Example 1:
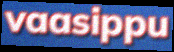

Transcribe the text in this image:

vaasippu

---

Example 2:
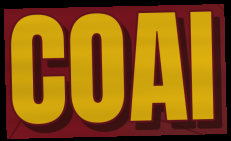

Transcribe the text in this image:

COAI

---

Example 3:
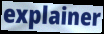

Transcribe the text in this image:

explainer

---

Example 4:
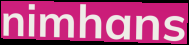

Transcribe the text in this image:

nimhans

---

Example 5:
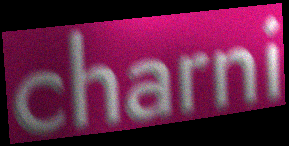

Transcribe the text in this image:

charni